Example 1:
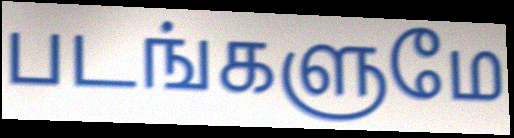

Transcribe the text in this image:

படங்களுமே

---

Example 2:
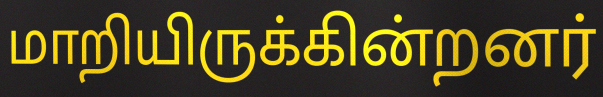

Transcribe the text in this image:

மாறியிருக்கின்றனர்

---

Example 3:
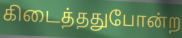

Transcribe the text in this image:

கிடைத்ததுபோன்ற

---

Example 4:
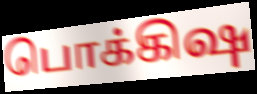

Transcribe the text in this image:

பொக்கிஷ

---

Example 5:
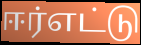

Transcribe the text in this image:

ஈர்எட்டு